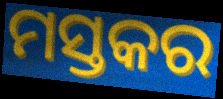
ମସ୍ତକର